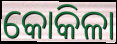
କୋକିଳା